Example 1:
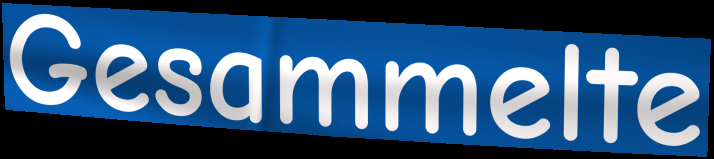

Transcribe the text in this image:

Gesammelte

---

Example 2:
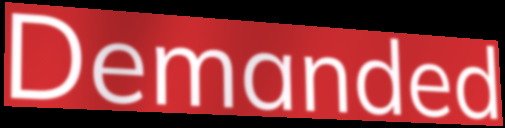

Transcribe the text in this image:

Demanded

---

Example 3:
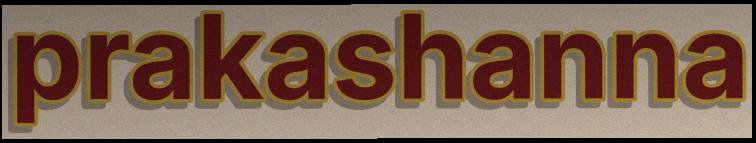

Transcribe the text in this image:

prakashanna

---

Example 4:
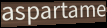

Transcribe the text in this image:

aspartame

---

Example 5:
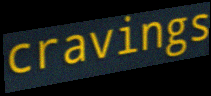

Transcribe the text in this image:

cravings